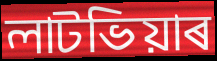
লাটভিয়াৰ